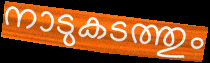
നാടുകടത്തും